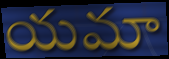
యమా